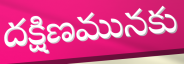
దక్షిణమునకు